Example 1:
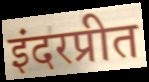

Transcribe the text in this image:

इंदरप्रीत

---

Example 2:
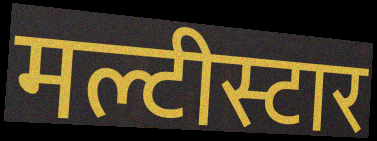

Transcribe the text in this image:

मल्टीस्टार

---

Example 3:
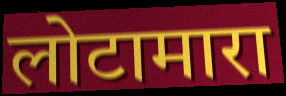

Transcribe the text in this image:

लोटामारा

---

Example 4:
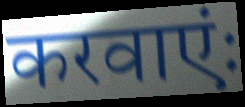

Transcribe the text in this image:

करवाएंः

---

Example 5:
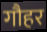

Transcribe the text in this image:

गौहर